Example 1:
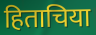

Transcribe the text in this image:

हिताचिया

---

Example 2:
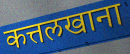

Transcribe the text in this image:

कत्तलखाना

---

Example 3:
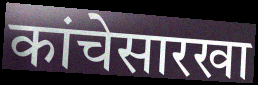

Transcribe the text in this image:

कांचेसारखा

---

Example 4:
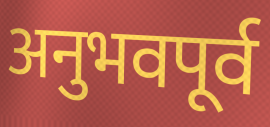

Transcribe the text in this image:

अनुभवपूर्व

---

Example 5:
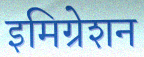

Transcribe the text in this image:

इमिग्रेशन